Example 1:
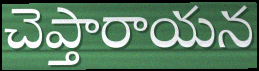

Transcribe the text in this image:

చెప్తారాయన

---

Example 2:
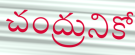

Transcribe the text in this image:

చంద్రునికో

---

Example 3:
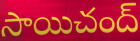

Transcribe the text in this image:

సాయిచంద్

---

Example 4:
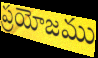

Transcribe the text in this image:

ప్రయోజము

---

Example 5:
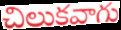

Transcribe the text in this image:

చిలుకవాగు